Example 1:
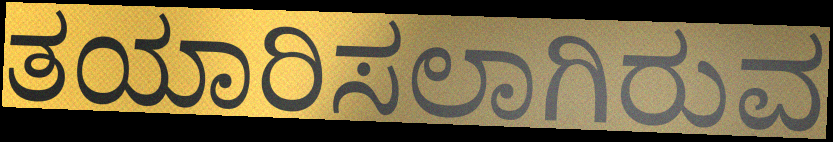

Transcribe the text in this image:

ತಯಾರಿಸಲಾಗಿರುವ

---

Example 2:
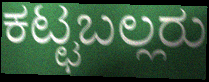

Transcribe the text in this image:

ಕಟ್ಟಬಲ್ಲರು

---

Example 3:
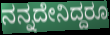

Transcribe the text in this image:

ನನ್ನದೇನಿದ್ದರೂ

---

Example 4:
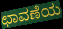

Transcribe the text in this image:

ಛಾವಣೆಯ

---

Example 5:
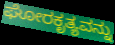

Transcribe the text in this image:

ಘೋರಕೃತ್ಯವನ್ನು